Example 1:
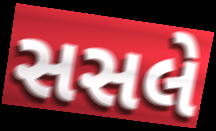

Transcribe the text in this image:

સસલે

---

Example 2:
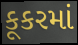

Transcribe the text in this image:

કૂકરમાં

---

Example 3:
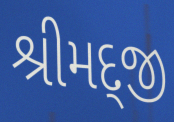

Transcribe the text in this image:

શ્રીમદ્જી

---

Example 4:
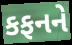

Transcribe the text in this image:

કફનને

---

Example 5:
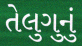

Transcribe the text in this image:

તેલુગુનું